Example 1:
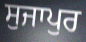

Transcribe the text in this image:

ਸੁਜਾਪੁਰ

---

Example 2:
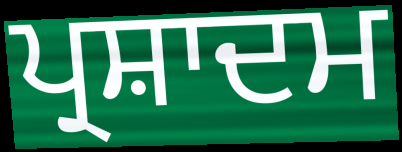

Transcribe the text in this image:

ਪ੍ਰਸ਼ਾਦਮ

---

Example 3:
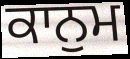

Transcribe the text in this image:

ਕਾਨੁਮ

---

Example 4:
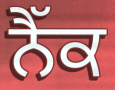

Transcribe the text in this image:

ਨੈੱਕ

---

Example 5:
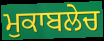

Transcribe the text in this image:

ਮੁਕਾਬਲੇਚ